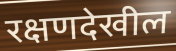
रक्षणदेखील